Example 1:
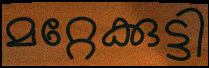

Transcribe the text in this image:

മറ്റേക്കുട്ടി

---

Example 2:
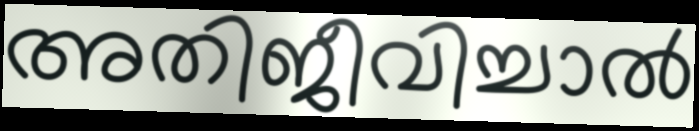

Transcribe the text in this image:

അതിജീവിച്ചാൽ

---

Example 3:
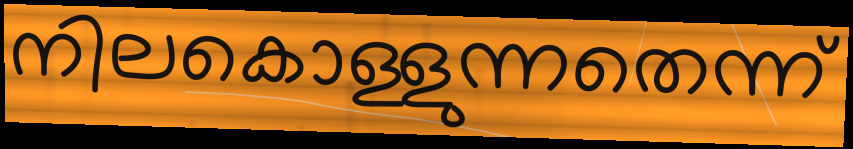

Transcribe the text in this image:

നിലകൊള്ളുന്നതെന്ന്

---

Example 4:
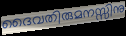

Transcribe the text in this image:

ദൈവതിരുമനസ്സിനു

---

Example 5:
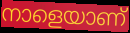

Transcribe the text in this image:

നാളെയാണ്